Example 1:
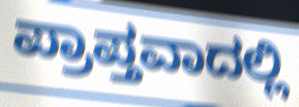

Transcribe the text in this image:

ಪ್ರಾಪ್ತವಾದಲ್ಲಿ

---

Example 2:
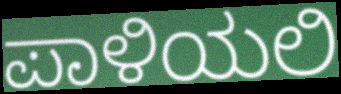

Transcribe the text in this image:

ಪಾಳಿಯಲಿ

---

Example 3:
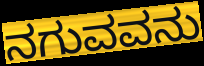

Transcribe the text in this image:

ನಗುವವನು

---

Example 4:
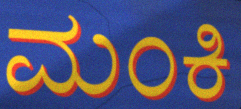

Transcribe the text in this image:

ಮಂಕಿ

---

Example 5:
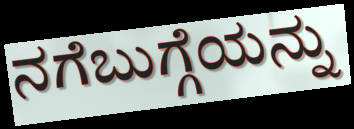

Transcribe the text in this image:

ನಗೆಬುಗ್ಗೆಯನ್ನು